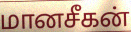
மானசீகன்